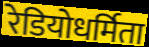
रेडियोधर्मिता